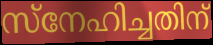
സ്നേഹിച്ചതിന്